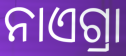
ନାଏଗ୍ରା